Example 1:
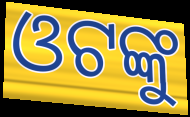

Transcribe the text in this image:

ଓଟଙ୍କୁ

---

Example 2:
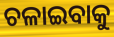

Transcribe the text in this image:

ଚଳାଇବାକୁ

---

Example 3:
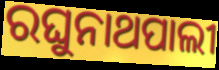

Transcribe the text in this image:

ରଘୁନାଥପାଲୀ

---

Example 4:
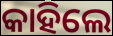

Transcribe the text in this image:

କାହିଲେ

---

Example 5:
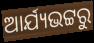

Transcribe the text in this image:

ଆର୍ଯ୍ୟଭଟ୍ଟରୁ